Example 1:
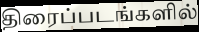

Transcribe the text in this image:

திரைப்படங்களில்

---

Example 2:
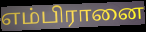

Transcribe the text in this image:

எம்பிரானை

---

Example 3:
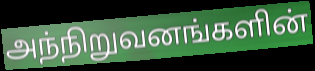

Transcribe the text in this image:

அந்நிறுவனங்களின்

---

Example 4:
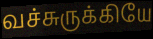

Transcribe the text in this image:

வச்சுருக்கியே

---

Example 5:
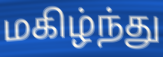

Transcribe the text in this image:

மகிழ்ந்து